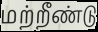
மற்றீண்டு